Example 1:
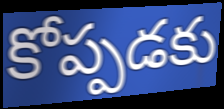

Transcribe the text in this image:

కోప్పడకు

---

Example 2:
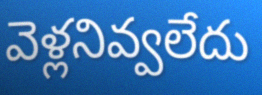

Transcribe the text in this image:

వెళ్లనివ్వలేదు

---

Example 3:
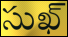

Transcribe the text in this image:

సుఖ్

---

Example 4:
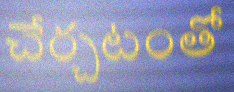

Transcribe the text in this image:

చేర్చటంతో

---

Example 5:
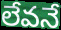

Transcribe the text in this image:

లేవనే